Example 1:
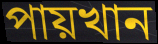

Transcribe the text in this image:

পায়খান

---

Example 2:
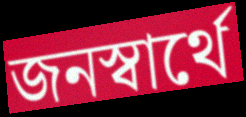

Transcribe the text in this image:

জনস্বার্থে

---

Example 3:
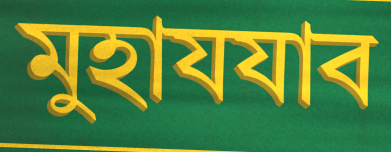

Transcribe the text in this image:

মুহাযযাব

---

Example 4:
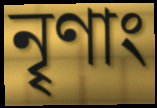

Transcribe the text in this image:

নৄণাং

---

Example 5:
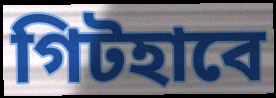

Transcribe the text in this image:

গিটহাবে